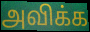
அவிக்க